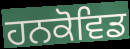
ਹਨਕੋਵਿਡ